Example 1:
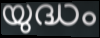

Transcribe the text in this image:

യുദ്ധം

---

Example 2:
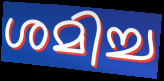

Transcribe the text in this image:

ശമിച്ച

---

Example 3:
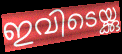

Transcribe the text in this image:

ഇവിടെയ്ക്കു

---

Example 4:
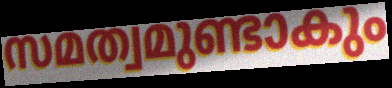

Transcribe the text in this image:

സമത്വമുണ്ടാകും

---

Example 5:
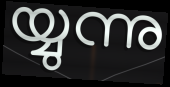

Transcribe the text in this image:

യ്യുന്നു